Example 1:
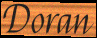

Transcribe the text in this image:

Doran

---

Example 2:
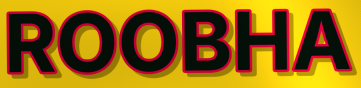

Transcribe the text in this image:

ROOBHA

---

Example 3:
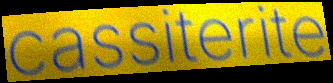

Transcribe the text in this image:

cassiterite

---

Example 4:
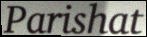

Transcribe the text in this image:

Parishat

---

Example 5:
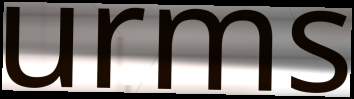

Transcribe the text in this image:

urms